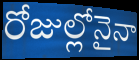
రోజుల్లోనైనా